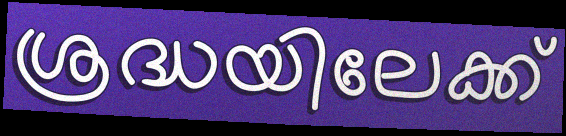
ശ്രദ്ധയിലേക്ക്